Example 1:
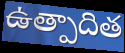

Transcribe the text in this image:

ఉత్పాదిత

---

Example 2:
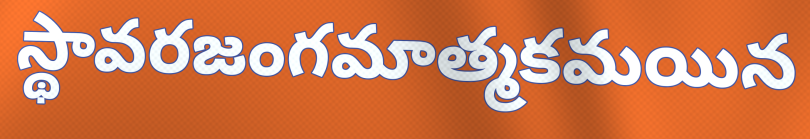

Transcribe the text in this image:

స్థావరజంగమాత్మకమయిన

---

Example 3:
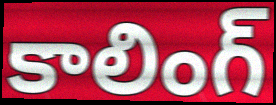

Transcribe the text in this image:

కాలింగ్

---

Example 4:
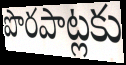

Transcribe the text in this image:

పొరపాట్లకు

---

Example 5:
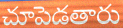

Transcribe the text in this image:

చూపెడతారు